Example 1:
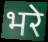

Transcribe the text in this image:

भरे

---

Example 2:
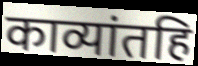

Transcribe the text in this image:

काव्यांतहि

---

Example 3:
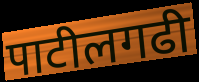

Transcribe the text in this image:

पाटीलगढी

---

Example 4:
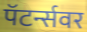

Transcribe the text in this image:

पॅटर्न्सवर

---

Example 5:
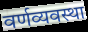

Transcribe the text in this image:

वर्णव्यवस्था